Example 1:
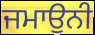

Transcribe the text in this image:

ਜਮਾਉਨੀ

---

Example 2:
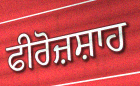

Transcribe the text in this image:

ਫੀਰੋਜ਼ਸ਼ਾਹ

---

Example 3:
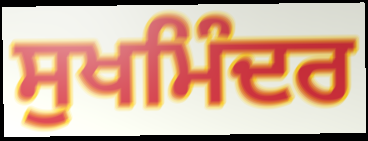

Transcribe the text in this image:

ਸੁਖਮਿੰਦਰ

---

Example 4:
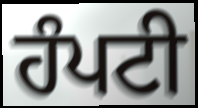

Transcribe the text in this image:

ਹੰਪਟੀ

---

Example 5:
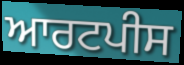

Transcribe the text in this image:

ਆਰਟਪੀਸ